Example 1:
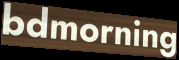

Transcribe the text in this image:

bdmorning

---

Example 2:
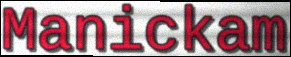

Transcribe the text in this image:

Manickam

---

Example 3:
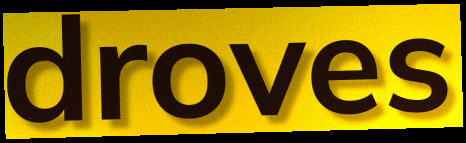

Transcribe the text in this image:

droves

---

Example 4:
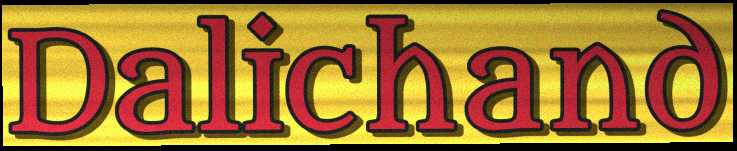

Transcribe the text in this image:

Dalichand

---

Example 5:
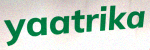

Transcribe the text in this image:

yaatrika